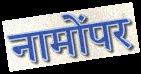
नामोंपर